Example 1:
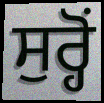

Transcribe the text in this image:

ਸੁਰ੍ਹੋਂ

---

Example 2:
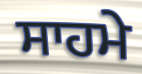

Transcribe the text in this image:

ਸਾਹਮੇ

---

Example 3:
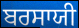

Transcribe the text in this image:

ਬਰਸਾਯੀ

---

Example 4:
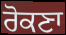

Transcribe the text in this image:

ਰੋਕਣਾ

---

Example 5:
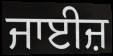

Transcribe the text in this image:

ਜਾਈਜ਼